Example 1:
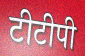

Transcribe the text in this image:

टीटीपी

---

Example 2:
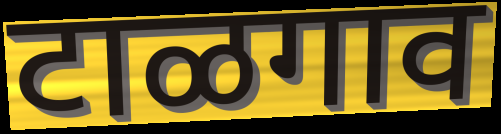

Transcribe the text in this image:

टाळगाव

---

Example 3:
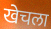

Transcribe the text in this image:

खेचला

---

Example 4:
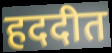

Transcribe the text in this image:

हददीत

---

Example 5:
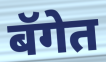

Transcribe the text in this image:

बॅगेत